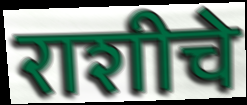
राशीचे